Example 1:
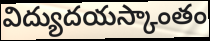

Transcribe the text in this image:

విద్యుదయస్కాంతం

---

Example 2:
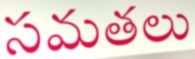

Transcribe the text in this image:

సమతలు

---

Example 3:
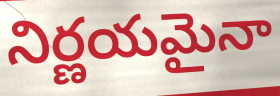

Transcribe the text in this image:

నిర్ణయమైనా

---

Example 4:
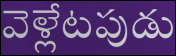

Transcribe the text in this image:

వెళ్లేటపుడు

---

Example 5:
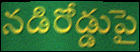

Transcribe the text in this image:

నడిరోడ్డుపై